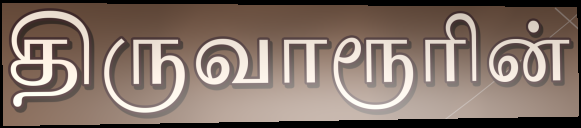
திருவாரூரின்